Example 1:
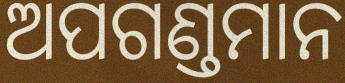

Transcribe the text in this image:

ଅପଗଣ୍ଡମାନ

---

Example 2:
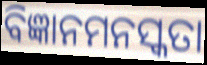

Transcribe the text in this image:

ବିଜ୍ଞାନମନସ୍କତା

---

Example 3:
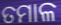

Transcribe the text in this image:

ତମାଳ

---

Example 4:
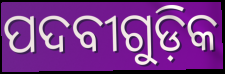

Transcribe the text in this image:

ପଦବୀଗୁଡ଼ିକ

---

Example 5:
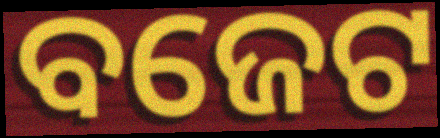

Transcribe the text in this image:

ବଜେଟ